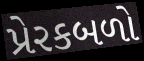
પ્રેરકબળો